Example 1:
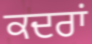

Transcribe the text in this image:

ਕਦਰਾਂ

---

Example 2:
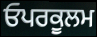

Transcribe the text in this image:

ਓਪਰਕੂਲਮ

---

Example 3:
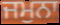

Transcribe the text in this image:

ਜਮੁਨਾ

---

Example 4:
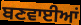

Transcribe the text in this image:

ਬਣਵਾਈਆਂ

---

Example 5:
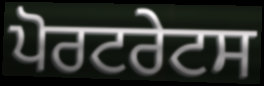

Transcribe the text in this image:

ਪੋਰਟਰੇਟਸ